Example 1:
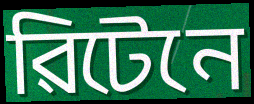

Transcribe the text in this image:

ৱিটেনে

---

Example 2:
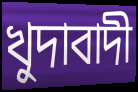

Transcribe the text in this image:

খুদাবাদী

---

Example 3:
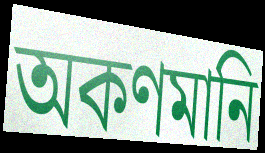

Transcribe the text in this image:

অকণমানি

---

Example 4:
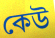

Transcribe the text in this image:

কেউ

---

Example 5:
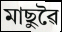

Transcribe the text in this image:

মাছুৱৈ